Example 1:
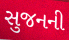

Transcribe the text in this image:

સુજનની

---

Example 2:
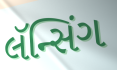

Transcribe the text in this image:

લૅન્સિંગ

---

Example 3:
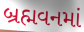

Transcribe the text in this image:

બ્રહ્મવનમાં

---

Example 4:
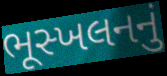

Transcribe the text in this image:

ભૂસ્ખલનનું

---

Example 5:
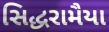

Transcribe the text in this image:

સિદ્ધરામૈયા